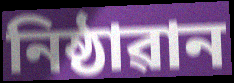
নিষ্ঠাৱান